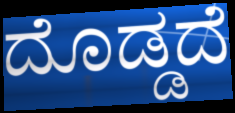
ದೊಡ್ಡದೆ